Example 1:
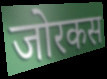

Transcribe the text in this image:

जोरकस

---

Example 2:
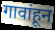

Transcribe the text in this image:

गावांहून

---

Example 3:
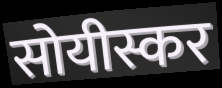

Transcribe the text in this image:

सोयीस्कर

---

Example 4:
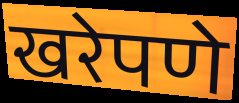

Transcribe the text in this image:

खरेपणे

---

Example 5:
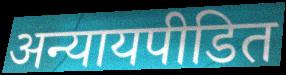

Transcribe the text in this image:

अन्यायपीडित